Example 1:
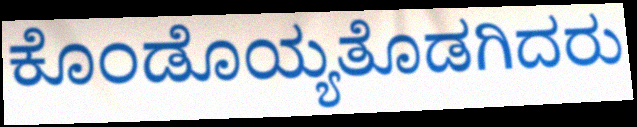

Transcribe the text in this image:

ಕೊಂಡೊಯ್ಯತೊಡಗಿದರು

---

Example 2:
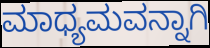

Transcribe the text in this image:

ಮಾಧ್ಯಮವನ್ನಾಗಿ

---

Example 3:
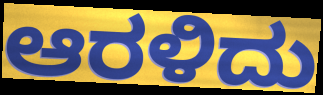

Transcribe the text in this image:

ಆರಳಿದು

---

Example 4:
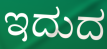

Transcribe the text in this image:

ಇದುದ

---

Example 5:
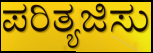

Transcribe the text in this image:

ಪರಿತ್ಯಜಿಸು